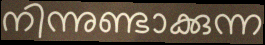
നിന്നുണ്ടാക്കുന്ന